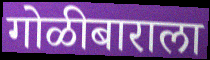
गोळीबाराला